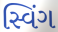
સ્વિંગ